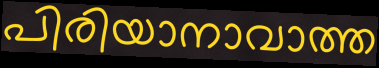
പിരിയാനാവാത്ത